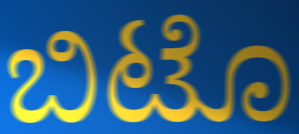
ಬಿಟೊ